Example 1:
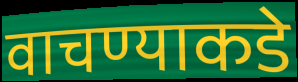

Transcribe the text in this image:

वाचण्याकडे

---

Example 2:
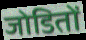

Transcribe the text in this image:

जोडितों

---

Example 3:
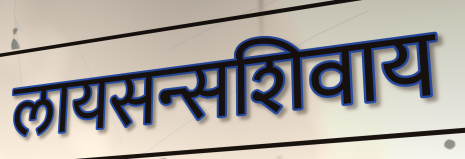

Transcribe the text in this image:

लायसन्सशिवाय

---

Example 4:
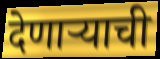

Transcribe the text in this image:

देणाऱ्याची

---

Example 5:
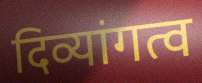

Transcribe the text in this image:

दिव्यांगत्व